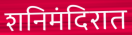
शनिमंदिरात